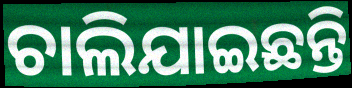
ଚାଲିଯାଇଛନ୍ତି